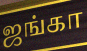
ஜங்கா